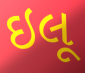
ઇલૂ